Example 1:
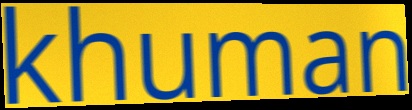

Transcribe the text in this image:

khuman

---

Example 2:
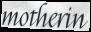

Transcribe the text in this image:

motherin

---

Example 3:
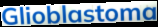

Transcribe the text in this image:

Glioblastoma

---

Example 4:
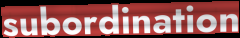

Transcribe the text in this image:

subordination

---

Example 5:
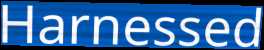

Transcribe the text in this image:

Harnessed